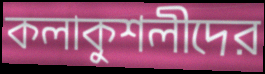
কলাকুশলীদের